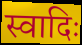
स्वादिः